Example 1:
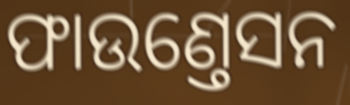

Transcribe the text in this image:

ଫାଉଣ୍ତେସନ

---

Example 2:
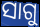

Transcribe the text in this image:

ସାଗୁ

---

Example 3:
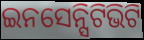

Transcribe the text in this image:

ଇନସେନ୍ସିଟିଭିଟି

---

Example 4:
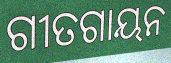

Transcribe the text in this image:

ଗୀତଗାୟନ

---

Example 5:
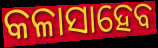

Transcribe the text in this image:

କଳାସାହେବ